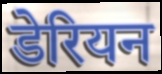
डेरियन